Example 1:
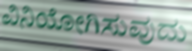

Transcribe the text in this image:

ವಿನಿಯೋಗಿಸುವುದು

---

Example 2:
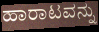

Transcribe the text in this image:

ಹಾರಾಟವನ್ನು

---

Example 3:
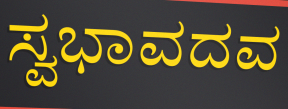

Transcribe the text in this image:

ಸ್ವಭಾವದವ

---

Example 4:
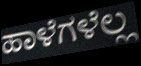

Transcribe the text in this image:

ಹಾಳೆಗಳೆಲ್ಲ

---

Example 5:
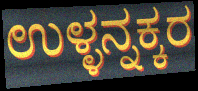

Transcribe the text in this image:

ಉಳ್ಳನ್ನಕ್ಕರ